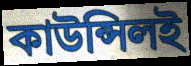
কাউন্সিলই